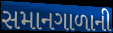
સમાનગાળાની